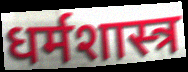
धर्मशास्त्र